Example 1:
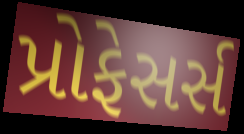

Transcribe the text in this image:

પ્રોફેસર્સ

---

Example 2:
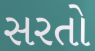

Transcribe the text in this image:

સરતો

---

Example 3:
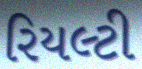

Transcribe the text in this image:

રિયલ્ટી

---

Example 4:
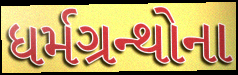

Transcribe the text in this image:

ધર્મગ્રન્થોના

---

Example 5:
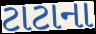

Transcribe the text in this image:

ટાટાના